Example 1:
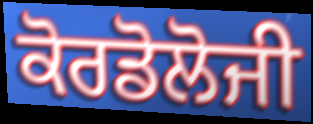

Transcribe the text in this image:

ਕੋਰਡੋਲੋਜੀ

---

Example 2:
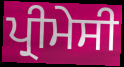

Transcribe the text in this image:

ਪ੍ਰੀਮੇਸੀ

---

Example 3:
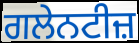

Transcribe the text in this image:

ਗਲੇਨਟੀਜ਼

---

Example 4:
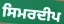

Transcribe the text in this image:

ਸਿਮਰਦੀਪ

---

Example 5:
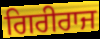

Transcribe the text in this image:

ਗਿਰੀਰਾਜ